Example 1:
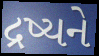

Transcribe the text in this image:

દ્રષ્યને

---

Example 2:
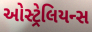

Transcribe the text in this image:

ઓસ્ટ્રેલિયન્સ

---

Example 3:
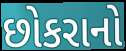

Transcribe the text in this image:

છોકરાનો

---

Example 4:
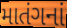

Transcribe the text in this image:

માતંગનાં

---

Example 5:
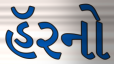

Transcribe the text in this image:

હૅરનો